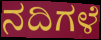
ನದಿಗಳೆ